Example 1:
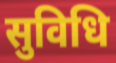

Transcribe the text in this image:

सुविधि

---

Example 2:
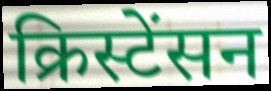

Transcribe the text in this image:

क्रिस्टेंसन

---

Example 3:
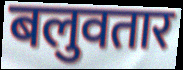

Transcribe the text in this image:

बलुवतार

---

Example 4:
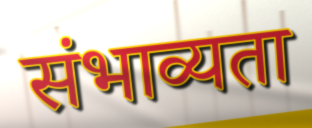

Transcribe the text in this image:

संभाव्यता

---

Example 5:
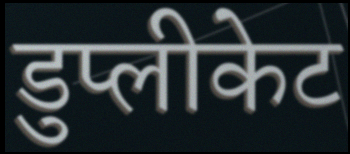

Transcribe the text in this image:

डुप्‍लीकेट